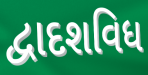
દ્વાદશવિધ